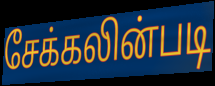
சேக்கலின்படி